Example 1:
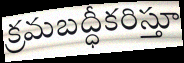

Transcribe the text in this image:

క్రమబద్ధీకరిస్తూ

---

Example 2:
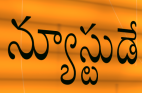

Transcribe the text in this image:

న్యూస్టుడే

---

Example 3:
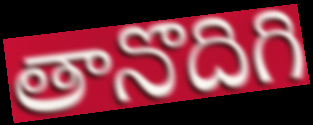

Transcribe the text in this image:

తానొదిగి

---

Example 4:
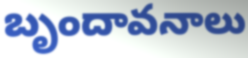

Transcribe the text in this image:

బృందావనాలు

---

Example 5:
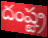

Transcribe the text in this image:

దంష్ట్ర